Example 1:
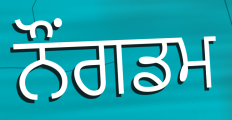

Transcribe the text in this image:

ਨੌਂਗਡਮ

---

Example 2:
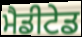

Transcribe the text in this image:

ਮੈਡੀਟੇਡ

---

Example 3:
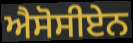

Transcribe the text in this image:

ਐਸੋਸੀਏਨ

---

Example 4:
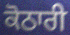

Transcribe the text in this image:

ਕੋਠਾਰੀ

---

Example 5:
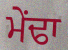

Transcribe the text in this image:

ਮੇਂਢਾ